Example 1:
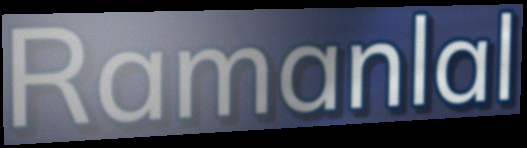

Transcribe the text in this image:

Ramanlal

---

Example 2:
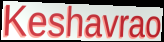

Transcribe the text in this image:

Keshavrao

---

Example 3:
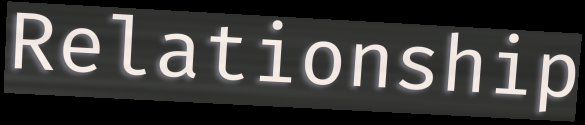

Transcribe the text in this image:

Relationship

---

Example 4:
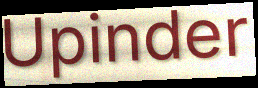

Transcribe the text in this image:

Upinder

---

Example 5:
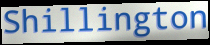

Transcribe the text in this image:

Shillington